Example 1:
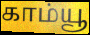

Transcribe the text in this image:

காம்யூ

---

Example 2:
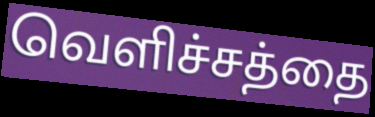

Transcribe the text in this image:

வெளிச்சத்தை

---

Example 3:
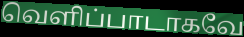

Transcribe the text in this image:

வெளிப்பாடாகவே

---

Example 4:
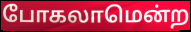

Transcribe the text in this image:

போகலாமென்ற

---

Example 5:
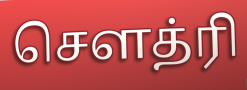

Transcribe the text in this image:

சௌத்ரி